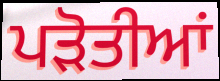
ਪੜੋਤੀਆਂ